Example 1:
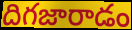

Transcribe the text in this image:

దిగజారాడం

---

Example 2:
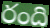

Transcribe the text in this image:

రంది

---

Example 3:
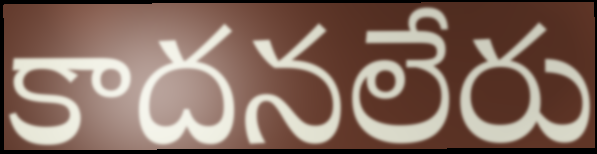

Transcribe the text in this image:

కాదనలేరు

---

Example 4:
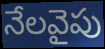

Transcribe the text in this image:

నేలవైపు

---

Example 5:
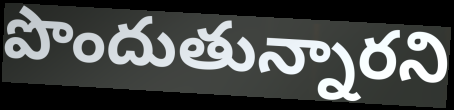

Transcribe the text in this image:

పొందుతున్నారని